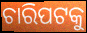
ଚାରିପଟକୁ